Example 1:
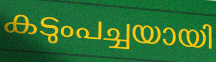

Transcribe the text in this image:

കടുംപച്ചയായി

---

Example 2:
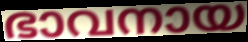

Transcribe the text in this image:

ഭാവനായ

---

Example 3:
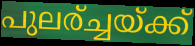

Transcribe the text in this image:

പുലര്ച്ചയ്ക്ക്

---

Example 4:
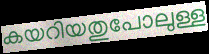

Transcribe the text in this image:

കയറിയതുപോലുള്ള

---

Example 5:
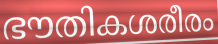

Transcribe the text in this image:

ഭൗതികശരീരം